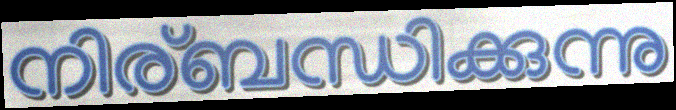
നിര്ബന്ധിക്കുന്നു